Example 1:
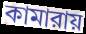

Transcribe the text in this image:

কামারায়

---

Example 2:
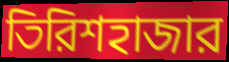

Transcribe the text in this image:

তিরিশহাজার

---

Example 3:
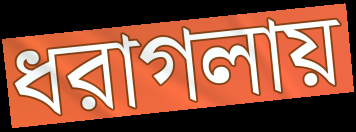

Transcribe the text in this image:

ধরাগলায়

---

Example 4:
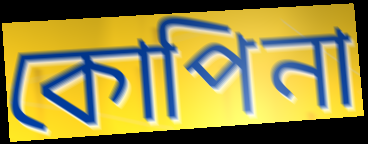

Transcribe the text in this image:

কোপিনা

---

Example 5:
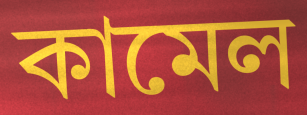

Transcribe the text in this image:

কামেল